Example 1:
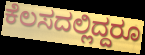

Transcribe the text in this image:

ಕೆಲಸದಲ್ಲಿದ್ದರೂ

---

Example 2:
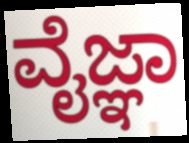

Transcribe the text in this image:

ವೈಜ್ಞಾ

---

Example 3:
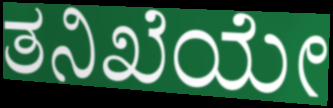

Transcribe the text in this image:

ತನಿಖೆಯೇ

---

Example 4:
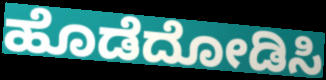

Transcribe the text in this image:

ಹೊಡೆದೋಡಿಸಿ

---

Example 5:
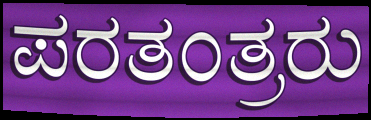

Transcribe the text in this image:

ಪರತಂತ್ರರು